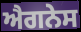
ਐਗਨੇਸ